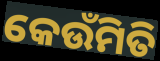
କେଉଁମିତି